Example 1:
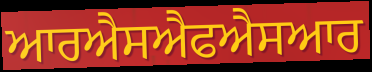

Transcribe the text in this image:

ਆਰਐਸਐਫਐਸਆਰ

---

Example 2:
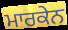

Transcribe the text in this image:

ਮਾਰਕੇਨ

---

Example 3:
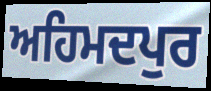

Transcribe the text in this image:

ਅਹਿਮਦਪੁਰ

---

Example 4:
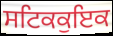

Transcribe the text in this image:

ਸਟਿਕਕੁਇਕ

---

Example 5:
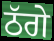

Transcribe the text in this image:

ਠੱਗੇ